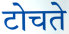
टोचते